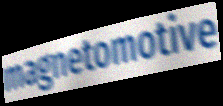
magnetomotive